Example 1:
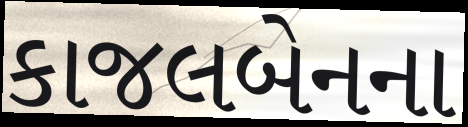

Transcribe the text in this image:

કાજલબેનના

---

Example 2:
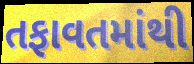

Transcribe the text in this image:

તફાવતમાંથી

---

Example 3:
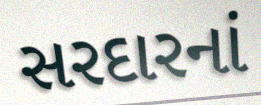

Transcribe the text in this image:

સરદારનાં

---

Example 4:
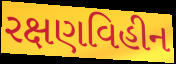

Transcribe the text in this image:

રક્ષણવિહીન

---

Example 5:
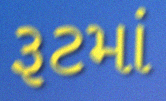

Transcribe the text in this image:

રૂટમાં